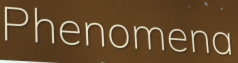
Phenomena